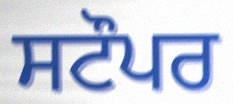
ਸਟੌਪਰ